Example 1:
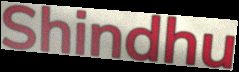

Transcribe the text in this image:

Shindhu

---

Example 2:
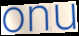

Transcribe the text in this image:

onu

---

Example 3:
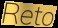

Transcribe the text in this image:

Reto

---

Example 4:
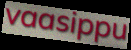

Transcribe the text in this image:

vaasippu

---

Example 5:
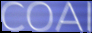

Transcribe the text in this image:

COAI